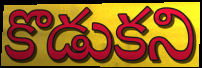
కొడుకని